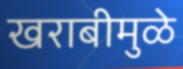
खराबीमुळे